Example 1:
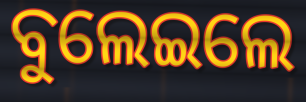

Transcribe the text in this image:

ବୁଲେଇଲେ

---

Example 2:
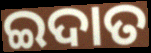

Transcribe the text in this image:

ଇଦାତ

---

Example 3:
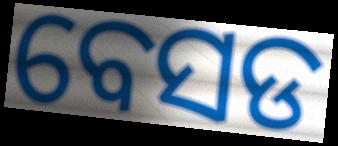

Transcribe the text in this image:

ବେସଡ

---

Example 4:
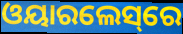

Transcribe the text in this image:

ଓୟାରଲେସ୍‌ରେ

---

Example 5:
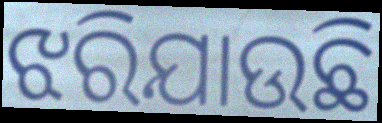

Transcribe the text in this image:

ଝରିଯାଉଛି